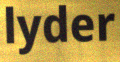
lyder